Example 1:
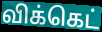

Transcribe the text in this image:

விக்கெட்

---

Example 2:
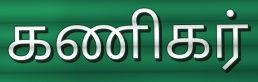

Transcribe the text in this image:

கணிகர்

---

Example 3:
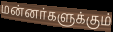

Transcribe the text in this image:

மன்னர்களுக்கும்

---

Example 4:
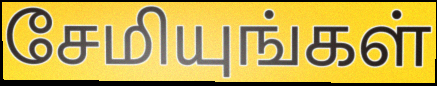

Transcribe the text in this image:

சேமியுங்கள்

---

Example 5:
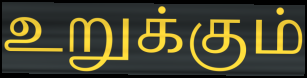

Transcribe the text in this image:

உறுக்கும்